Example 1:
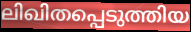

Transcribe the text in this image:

ലിഖിതപ്പെടുത്തിയ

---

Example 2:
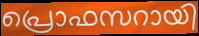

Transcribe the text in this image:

പ്രൊഫസറായി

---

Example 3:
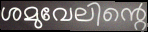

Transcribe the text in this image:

ശമുവേലിന്റെ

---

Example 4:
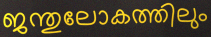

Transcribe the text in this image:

ജന്തുലോകത്തിലും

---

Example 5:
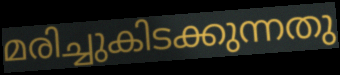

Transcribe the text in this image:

മരിച്ചുകിടക്കുന്നതു